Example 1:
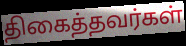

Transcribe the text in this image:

திகைத்தவர்கள்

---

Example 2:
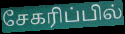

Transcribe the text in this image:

சேகரிப்பில்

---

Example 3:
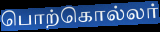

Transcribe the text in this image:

பொற்கொல்லர்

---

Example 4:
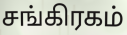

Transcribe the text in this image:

சங்கிரகம்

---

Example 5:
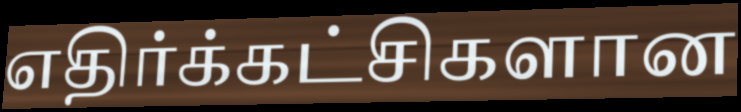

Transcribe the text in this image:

எதிர்க்கட்சிகளான